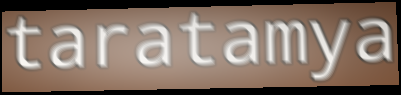
taratamya